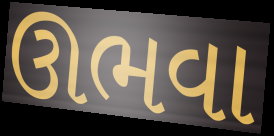
ઊભવા